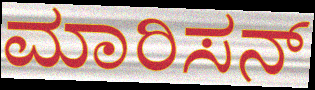
ಮಾರಿಸನ್